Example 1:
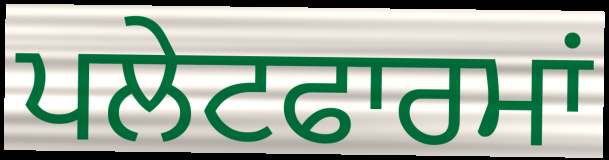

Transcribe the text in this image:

ਪਲੇਟਫਾਰਮਾਂ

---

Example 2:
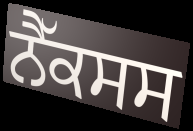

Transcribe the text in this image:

ਨੈੱਕਸਸ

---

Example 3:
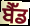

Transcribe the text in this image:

ਬੈੱਡ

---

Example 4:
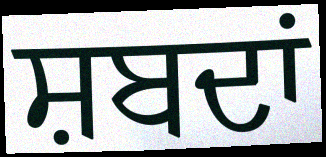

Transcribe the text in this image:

ਸ਼ਬਦਾਂ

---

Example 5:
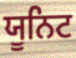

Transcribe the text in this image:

ਯੂਨਿਟ